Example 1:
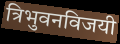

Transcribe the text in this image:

त्रिभुवनविजयी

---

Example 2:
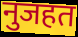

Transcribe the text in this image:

नुजहत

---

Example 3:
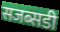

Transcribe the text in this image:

सजब्सडी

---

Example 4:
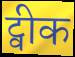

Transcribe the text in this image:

ट्वीक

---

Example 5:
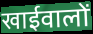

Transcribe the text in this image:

खाईवालों